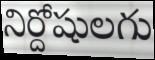
నిర్దోషులగు